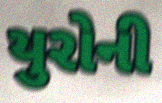
યુરોની